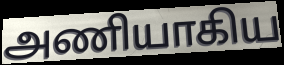
அணியாகிய